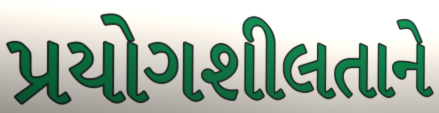
પ્રયોગશીલતાને